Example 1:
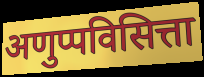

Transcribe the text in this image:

अणुप्पविसित्ता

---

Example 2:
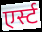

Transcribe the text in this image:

एर्स्ट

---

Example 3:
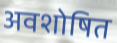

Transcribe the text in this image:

अवशोषित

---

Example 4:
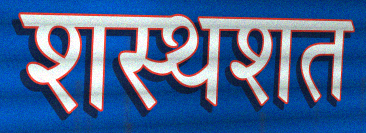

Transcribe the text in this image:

शस्थशत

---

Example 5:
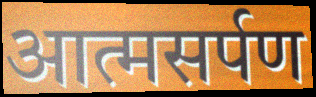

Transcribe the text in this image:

आत्मसर्पण